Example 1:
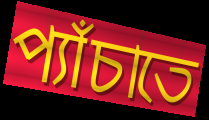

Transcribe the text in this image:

প্যাঁচাতে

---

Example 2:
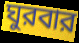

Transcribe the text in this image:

ঘুরবার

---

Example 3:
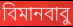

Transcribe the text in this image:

বিমানবাবু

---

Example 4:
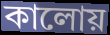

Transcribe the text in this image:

কালোয়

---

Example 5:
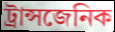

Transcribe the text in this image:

ট্রান্সজেনিক